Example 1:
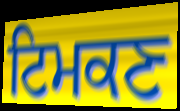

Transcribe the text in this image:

ਟਿਮਕਣ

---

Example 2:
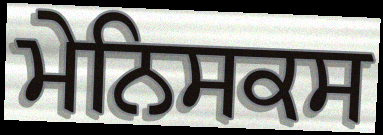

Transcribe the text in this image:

ਮੇਨਿਸਕਸ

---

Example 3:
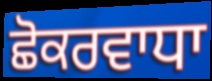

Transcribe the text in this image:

ਛੋਕਰਵਾਧਾ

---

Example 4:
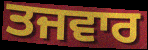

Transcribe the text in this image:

ਤਜਵਾਰ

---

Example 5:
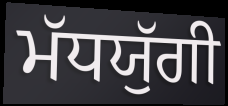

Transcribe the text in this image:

ਮੱਧਯੁੱਗੀ